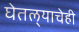
घेतल्याचेही